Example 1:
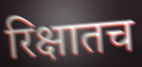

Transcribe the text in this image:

रिक्षातच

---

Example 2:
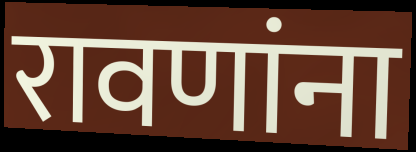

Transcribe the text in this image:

रावणांना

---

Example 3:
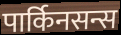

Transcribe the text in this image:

पार्किनसन्स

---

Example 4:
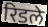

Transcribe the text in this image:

रिडले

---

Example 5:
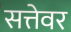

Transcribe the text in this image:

सत्तेवर